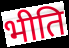
भीति